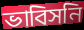
ভাবিসনি